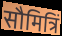
सौमित्रिं